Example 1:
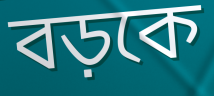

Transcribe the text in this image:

বড়কে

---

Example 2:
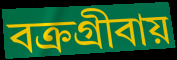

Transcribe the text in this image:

বক্রগ্রীবায়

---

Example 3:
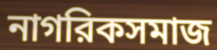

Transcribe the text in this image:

নাগরিকসমাজ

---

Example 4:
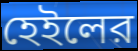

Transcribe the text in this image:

হেইলের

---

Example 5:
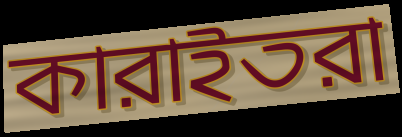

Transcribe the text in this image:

কারাইতরা